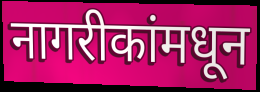
नागरीकांमधून